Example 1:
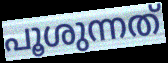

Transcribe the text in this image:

പൂശുന്നത്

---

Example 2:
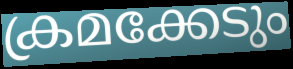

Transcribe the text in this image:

ക്രമക്കേടും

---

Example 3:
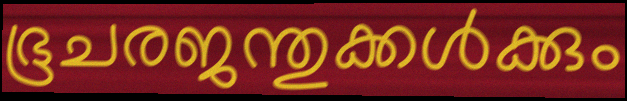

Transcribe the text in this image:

ഭൂചരജന്തുക്കൾക്കും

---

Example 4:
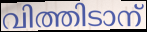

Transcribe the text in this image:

വിത്തിടാന്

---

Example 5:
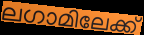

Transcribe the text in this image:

ലഗാമിലേക്ക്